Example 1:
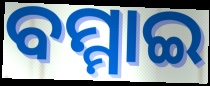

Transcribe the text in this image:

ବମ୍ମାଇ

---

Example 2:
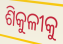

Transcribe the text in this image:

ଶିକୁଳୀକୁ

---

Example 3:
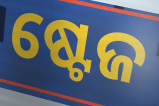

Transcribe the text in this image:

ଷ୍ଟେଜ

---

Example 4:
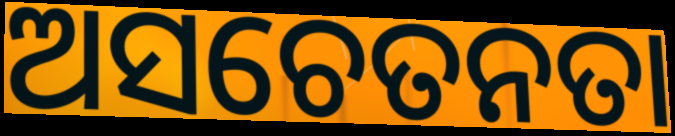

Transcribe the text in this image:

ଅସଚେତନତା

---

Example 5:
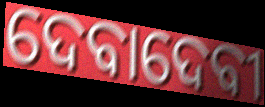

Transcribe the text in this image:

ଦେବାଦେବୀ